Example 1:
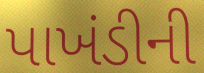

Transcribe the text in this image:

પાખંડીની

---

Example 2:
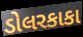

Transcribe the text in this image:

ડોલરકાકા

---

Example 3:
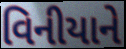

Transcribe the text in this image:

વિનીયાને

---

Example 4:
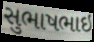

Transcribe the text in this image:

સુભાષભાઇ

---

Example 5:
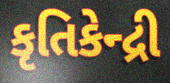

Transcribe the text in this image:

કૃતિકેન્દ્રી